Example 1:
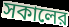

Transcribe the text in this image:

সকালের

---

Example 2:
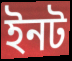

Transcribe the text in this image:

ইনট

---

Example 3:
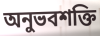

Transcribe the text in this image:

অনুভবশক্তি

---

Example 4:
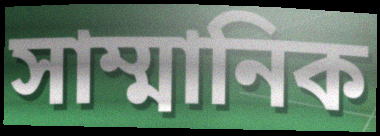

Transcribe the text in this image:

সাম্মানিক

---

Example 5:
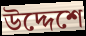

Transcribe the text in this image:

উদ্দেশে